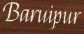
Baruipur